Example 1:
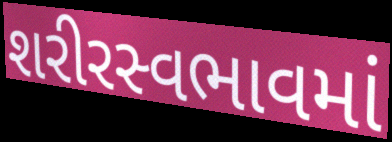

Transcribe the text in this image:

શરીરસ્વભાવમાં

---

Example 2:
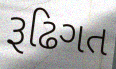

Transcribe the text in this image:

રૂઢિગત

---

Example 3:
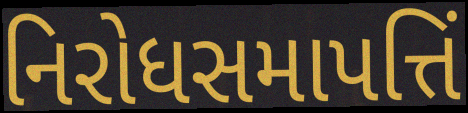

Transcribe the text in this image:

નિરોધસમાપત્તિં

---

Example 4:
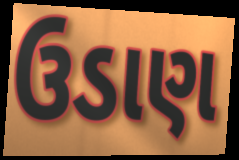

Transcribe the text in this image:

ઉડાણ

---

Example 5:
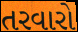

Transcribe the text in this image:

તરવારો